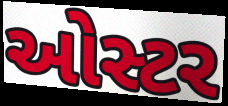
ઓસ્ટર